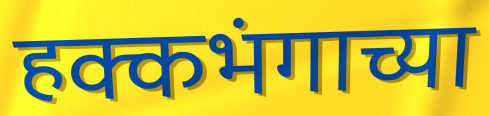
हक्कभंगाच्या